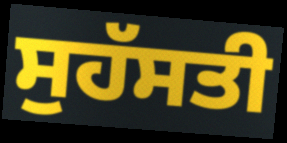
ਸੁਹੱਸਤੀ